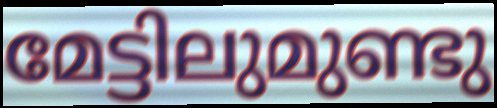
മേട്ടിലുമുണ്ടു